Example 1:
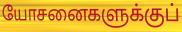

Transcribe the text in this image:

யோசனைகளுக்குப்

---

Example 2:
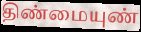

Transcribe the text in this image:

திண்மையுண்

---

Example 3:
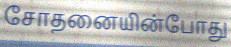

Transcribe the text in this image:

சோதனையின்போது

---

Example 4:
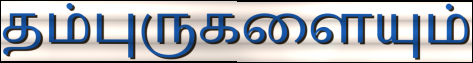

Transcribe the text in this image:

தம்புருகளையும்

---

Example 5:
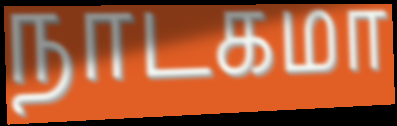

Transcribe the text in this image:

நாடகமா